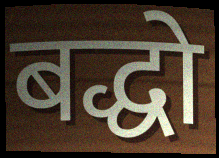
बद्धो